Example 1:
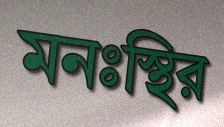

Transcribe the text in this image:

মনঃস্থির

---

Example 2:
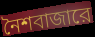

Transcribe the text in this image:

নৈশবাজারে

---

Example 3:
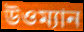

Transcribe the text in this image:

উওম্যান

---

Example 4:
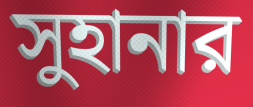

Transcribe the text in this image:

সুহানার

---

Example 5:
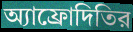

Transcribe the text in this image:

অ্যাফ্রোদিতির